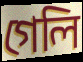
গেলি